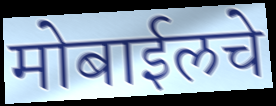
मोबाईलचे